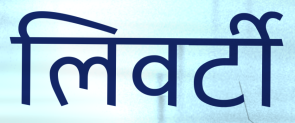
लिवर्टी